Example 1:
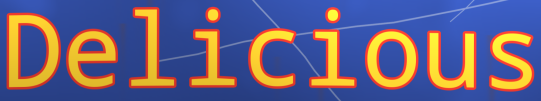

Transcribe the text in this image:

Delicious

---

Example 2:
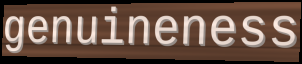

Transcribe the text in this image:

genuineness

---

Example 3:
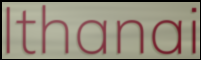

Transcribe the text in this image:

Ithanai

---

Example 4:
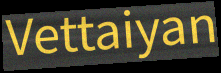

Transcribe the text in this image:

Vettaiyan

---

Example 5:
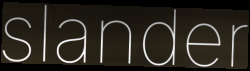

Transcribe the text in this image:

slander